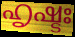
ഹൃഷ്ടഃ